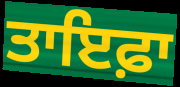
ਤਾਇਫ਼ਾ